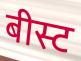
बीस्ट